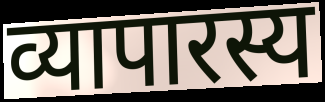
व्यापारस्य